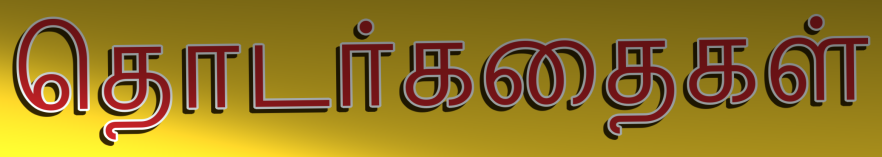
தொடர்கதைகள்